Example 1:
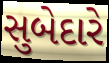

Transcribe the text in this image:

સુબેદારે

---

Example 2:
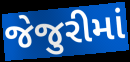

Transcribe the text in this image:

જેજુરીમાં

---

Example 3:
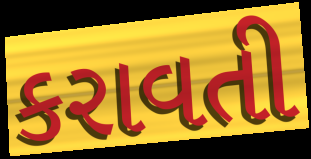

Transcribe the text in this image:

કરાવતી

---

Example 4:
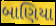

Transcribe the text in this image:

બાણિયા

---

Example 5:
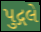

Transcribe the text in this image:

પુદ્ગલે